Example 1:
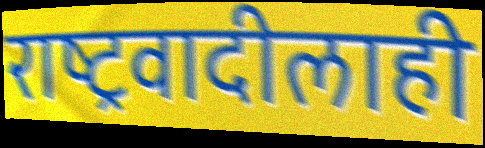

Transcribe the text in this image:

राष्ट्रवादीलाही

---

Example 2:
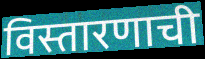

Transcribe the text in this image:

विस्तारणाची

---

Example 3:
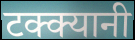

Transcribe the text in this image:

टक्क्यानी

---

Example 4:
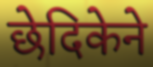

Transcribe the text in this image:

छेदिकेने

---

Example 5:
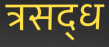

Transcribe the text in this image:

त्रसद्ध